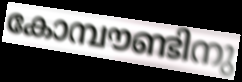
കോമ്പൗണ്ടിനു